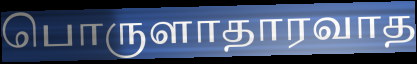
பொருளாதாரவாத